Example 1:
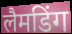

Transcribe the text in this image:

लैमडिंग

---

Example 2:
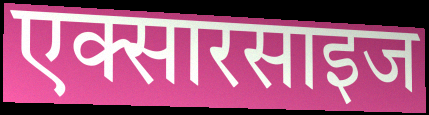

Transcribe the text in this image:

एक्सारसाइज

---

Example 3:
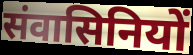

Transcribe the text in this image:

संवासिनियों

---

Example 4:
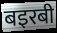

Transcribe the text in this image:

बइरबी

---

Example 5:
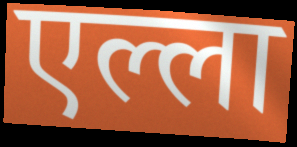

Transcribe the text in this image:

एल्ला